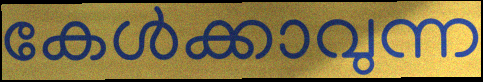
കേൾക്കാവുന്ന